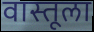
वास्तूला